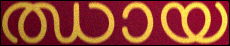
ഝായ